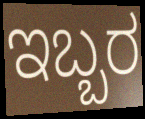
ಇಬ್ಬರ